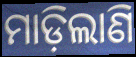
ମାଡ଼ିଲାଣି